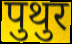
पुथुर